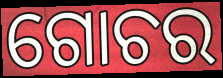
ଗୋଚର